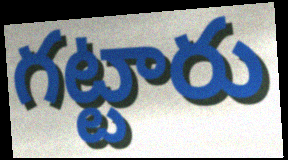
గట్టారు